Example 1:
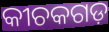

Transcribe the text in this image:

କୀଚକଗଡ଼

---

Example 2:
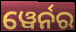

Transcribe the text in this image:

ୱେର୍ନର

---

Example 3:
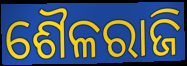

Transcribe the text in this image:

ଶୈଳରାଜି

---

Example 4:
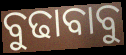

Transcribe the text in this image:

ବୁଢାବାବୁ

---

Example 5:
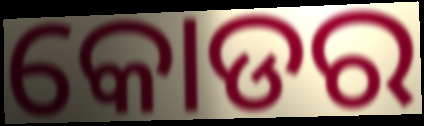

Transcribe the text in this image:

କୋଡର